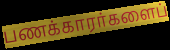
பணக்காரர்களைப்